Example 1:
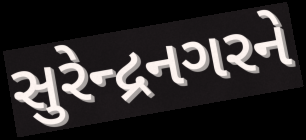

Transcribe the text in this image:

સુરેન્દ્રનગરને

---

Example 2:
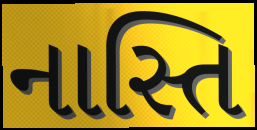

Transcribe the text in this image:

નાસ્તિ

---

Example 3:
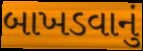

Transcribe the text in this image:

બાખડવાનું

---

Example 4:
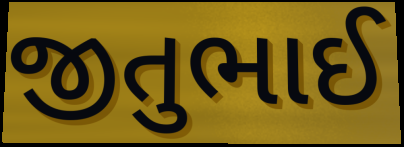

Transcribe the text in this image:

જીતુભાઈ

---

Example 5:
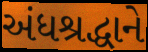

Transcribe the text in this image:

અંધશ્રદ્ધાને